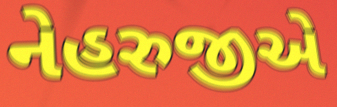
નેહરુજીએ